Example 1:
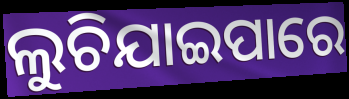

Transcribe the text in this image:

ଲୁଚିଯାଇପାରେ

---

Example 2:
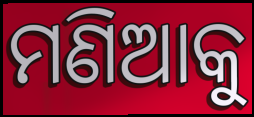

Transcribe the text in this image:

ମଣିଆକୁ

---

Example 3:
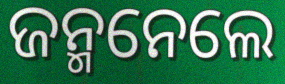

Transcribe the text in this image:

ଜନ୍ମନେଲେ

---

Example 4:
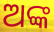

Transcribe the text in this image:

ଅଙ୍କ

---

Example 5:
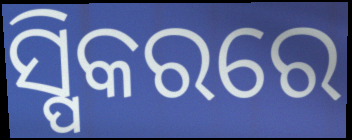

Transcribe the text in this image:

ସ୍ପିକରରେ